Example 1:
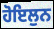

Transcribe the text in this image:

ਹੋਇਲੁਨ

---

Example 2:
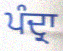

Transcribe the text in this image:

ਪੰਦ੍ਰਾ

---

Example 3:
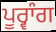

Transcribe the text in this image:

ਪੂਰ੍ਵਾੰਗ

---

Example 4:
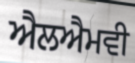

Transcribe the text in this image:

ਐਲਐਮਵੀ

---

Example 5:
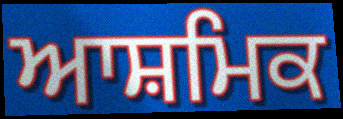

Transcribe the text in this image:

ਆਸ਼ਮਿਕ